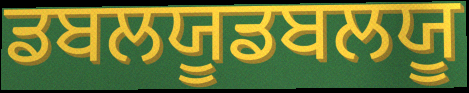
ਡਬਲਯੂਡਬਲਯੂ